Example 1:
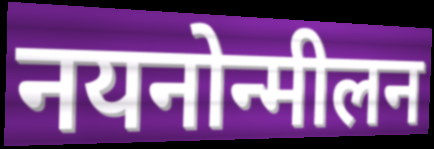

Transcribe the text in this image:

नयनोन्मीलन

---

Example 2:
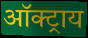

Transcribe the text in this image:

ऑक्ट्राय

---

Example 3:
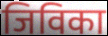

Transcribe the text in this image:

जिविका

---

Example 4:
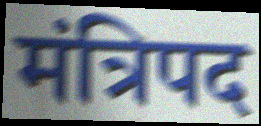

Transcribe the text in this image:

मंत्रिपद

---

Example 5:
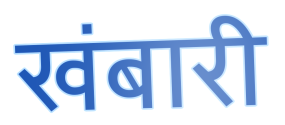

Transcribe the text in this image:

खंबारी